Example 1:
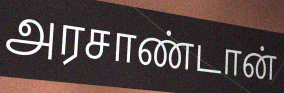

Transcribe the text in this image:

அரசாண்டான்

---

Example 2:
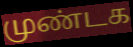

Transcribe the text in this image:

முண்டக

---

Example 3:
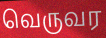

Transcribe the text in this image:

வெருவர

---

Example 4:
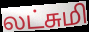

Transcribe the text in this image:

லட்சுமி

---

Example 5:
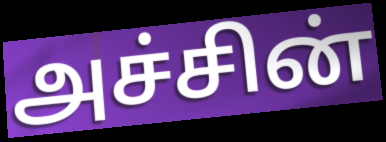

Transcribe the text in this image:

அச்சின்